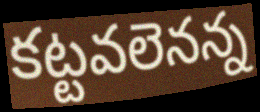
కట్టవలెనన్న